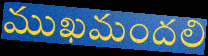
ముఖమందలి